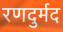
रणदुर्मद